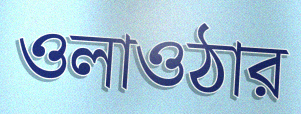
ওলাওঠার